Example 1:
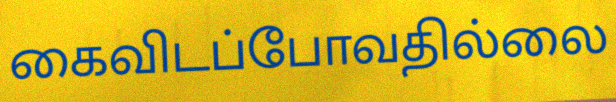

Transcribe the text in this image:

கைவிடப்போவதில்லை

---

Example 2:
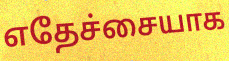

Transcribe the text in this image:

எதேச்சையாக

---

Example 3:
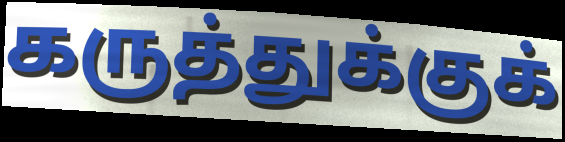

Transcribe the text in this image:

கருத்துக்குக்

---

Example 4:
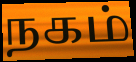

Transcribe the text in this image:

நகம்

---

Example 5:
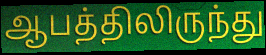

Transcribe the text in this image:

ஆபத்திலிருந்து